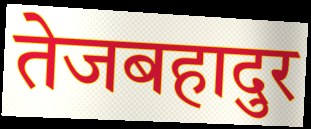
तेजबहादुर